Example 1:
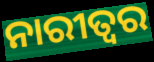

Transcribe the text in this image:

ନାରୀତ୍ୱର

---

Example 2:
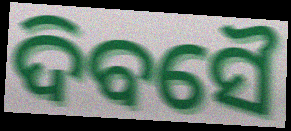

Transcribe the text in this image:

ଦିବସୈ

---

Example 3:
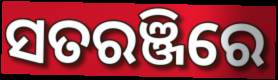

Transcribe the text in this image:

ସତରଞ୍ଜିରେ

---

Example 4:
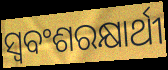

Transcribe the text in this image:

ସ୍ବବଂଶରକ୍ଷାର୍ଥୀ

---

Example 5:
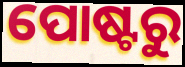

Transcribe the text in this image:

ପୋଷ୍ଟରୁ